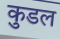
कुडल